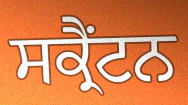
ਸਕ੍ਰੈਂਟਨ